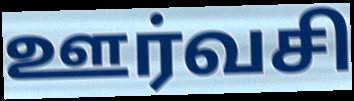
ஊர்வசி